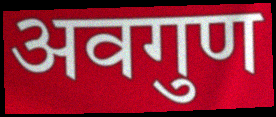
अवगुण